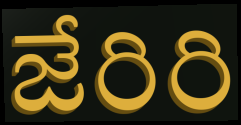
జేరిరి